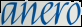
anero